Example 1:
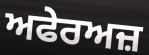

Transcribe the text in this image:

ਅਫੇਰਅਜ਼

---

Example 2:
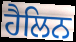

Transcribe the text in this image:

ਹੈਲਿਨ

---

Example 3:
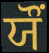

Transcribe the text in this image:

ਯੌਂ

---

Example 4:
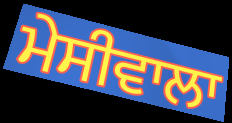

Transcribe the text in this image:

ਮੇਸੀਵਾਲਾ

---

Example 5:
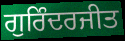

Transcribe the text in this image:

ਗੁਰਿੰਦਰਜੀਤ